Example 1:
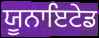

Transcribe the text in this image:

ਯੂਨਾਇਟੇਡ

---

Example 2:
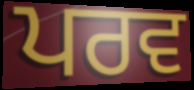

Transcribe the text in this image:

ਪਰਵ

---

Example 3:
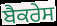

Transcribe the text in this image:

ਬੈਕਰੇਸ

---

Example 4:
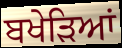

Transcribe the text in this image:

ਬਖੇੜਿਆਂ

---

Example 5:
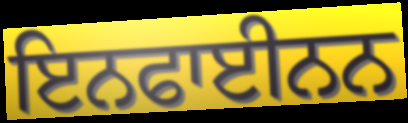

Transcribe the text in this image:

ਇਨਫਾਈਨਨ